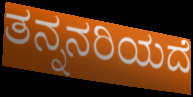
ತನ್ನನರಿಯದೆ